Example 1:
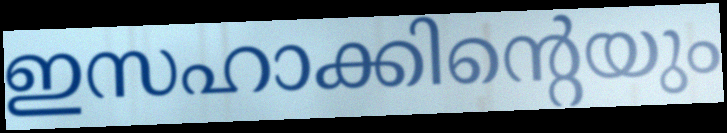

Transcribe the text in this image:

ഇസഹാക്കിന്റെയും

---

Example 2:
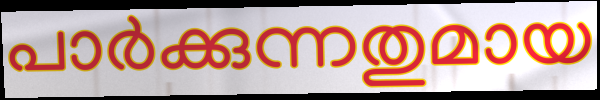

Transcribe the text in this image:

പാർക്കുന്നതുമായ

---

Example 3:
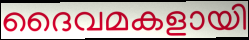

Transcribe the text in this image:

ദൈവമകളായി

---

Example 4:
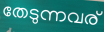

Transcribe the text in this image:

തേടുന്നവര്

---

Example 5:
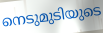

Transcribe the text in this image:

നെടുമുടിയുടെ